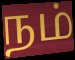
நம்